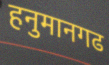
हनुमानगढ